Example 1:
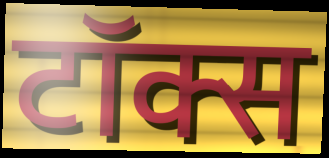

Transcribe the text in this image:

टॉक्स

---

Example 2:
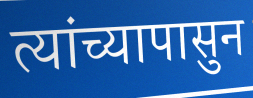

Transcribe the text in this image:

त्यांच्यापासुन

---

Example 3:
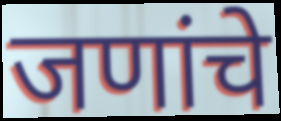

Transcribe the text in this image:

जणांचे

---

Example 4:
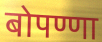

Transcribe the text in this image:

बोपण्णा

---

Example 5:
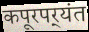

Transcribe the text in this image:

कपूरपर्यंत